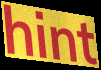
hint